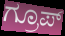
ಗ್ರೂಪ್